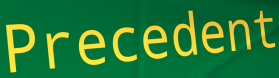
Precedent